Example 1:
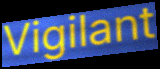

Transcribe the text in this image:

Vigilant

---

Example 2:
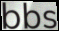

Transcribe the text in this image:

bbs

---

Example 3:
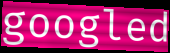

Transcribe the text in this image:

googled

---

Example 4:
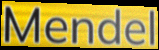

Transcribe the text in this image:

Mendel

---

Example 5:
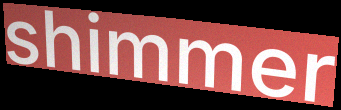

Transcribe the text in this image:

shimmer